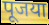
पूजया